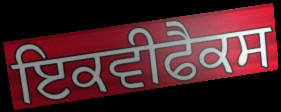
ਇਕਵੀਫੈਕਸ